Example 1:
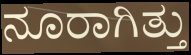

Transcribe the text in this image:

ನೂರಾಗಿತ್ತು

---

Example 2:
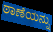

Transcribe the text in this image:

ಠಾಣೆಯನ್ನು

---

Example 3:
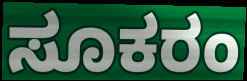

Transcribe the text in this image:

ಸೂಕರಂ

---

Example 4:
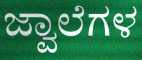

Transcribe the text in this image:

ಜ್ವಾಲೆಗಳ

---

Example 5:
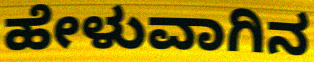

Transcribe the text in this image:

ಹೇಳುವಾಗಿನ